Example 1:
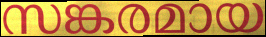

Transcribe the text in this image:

സങ്കരമായ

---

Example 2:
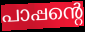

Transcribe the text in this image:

പാപ്പന്റെ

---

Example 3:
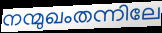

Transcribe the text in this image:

നന്മുഖംതന്നിലേ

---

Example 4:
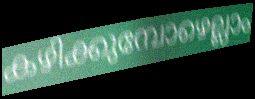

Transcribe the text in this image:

കഴിക്കുമ്പോഴെല്ലാം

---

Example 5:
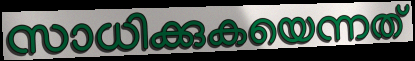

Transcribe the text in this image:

സാധിക്കുകയെന്നത്